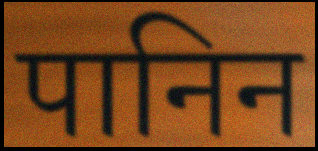
पानिन